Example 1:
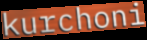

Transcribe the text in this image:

kurchoni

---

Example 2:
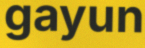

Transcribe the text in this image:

gayun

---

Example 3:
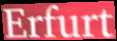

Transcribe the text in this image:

Erfurt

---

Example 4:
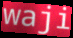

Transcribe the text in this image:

waji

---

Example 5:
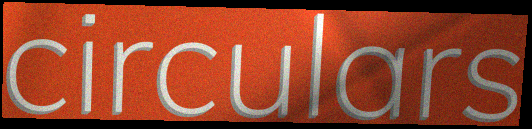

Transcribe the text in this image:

circulars